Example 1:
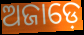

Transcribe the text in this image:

ଅଜାଡ଼େ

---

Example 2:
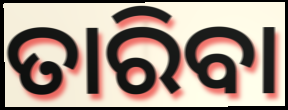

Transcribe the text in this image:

ତାରିବା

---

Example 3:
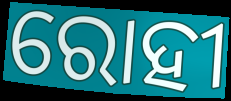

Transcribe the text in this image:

ରୋହୀ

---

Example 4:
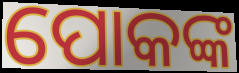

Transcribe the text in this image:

ପୋକଙ୍କ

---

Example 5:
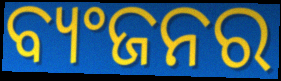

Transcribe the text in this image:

ବ୍ୟଂଜନର